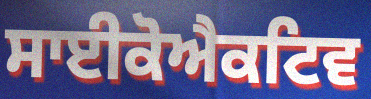
ਸਾਈਕੋਐਕਟਿਵ